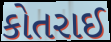
કોતરાઈ